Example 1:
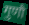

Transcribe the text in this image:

गुणौ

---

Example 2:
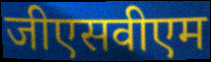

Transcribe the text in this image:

जीएसवीएम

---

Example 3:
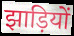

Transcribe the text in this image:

झाड़ियों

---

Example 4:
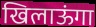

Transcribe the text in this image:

खिलाऊंगा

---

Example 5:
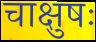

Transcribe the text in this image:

चाक्षुषः